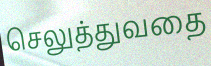
செலுத்துவதை